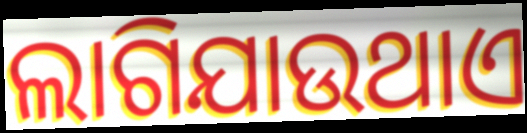
ଲାଗିଯାଉଥାଏ